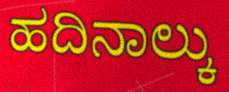
ಹದಿನಾಲ್ಕು